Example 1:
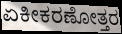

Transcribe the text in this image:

ಏಕೀಕರಣೋತ್ತರ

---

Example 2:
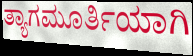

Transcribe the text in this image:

ತ್ಯಾಗಮೂರ್ತಿಯಾಗಿ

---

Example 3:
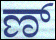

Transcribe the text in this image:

ಣ್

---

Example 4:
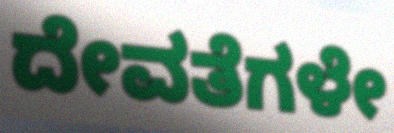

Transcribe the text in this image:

ದೇವತೆಗಳೇ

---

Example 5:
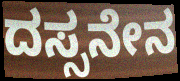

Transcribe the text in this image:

ದಸ್ಸನೇನ